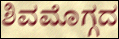
ಶಿವಮೊಗ್ಗದ